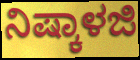
ನಿಷ್ಕಾಳಜಿ